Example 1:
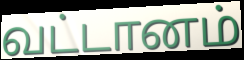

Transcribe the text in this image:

வட்டானம்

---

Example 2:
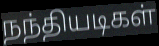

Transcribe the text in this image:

நந்தியடிகள்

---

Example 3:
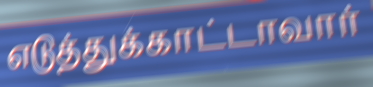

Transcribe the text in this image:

எடுத்துக்காட்டாவார்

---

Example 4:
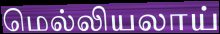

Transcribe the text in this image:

மெல்லியலாய்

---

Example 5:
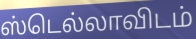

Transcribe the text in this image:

ஸ்டெல்லாவிடம்